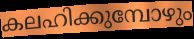
കലഹിക്കുമ്പോഴും